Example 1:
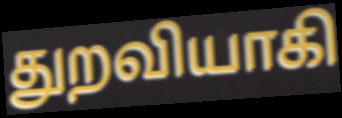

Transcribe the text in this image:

துறவியாகி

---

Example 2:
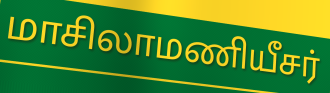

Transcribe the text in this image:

மாசிலாமணியீசர்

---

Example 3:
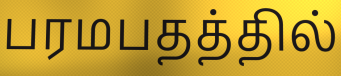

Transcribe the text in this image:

பரமபதத்தில்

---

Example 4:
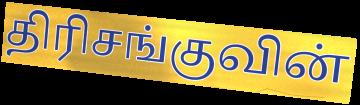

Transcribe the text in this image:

திரிசங்குவின்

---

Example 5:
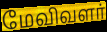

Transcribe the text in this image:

மேவிவளர்